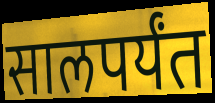
सालपर्यंत